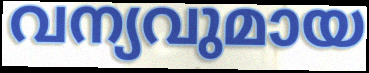
വന്യവുമായ